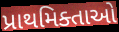
પ્રાથમિક્તાઓ